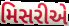
મિસરીએ